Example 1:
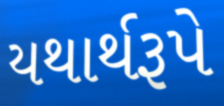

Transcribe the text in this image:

યથાર્થરૂપે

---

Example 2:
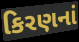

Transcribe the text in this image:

કિરણનાં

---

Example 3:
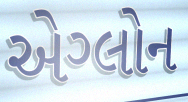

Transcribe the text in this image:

એગ્લોન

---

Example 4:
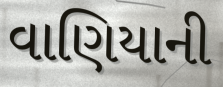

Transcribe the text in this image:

વાણિયાની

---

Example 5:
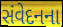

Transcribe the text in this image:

સંવેદનના